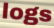
logs